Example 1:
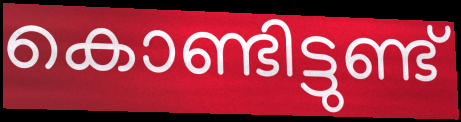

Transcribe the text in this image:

കൊണ്ടിട്ടുണ്ട്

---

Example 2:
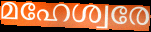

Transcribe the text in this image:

മഹേശ്വരേ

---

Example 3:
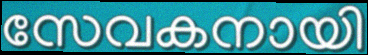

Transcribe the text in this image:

സേവകനായി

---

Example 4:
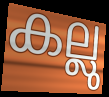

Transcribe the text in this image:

കല്ലു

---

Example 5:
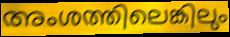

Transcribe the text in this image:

അംശത്തിലെങ്കിലും